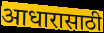
आधारासाठी